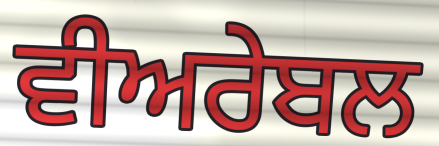
ਵੀਅਰੇਬਲ